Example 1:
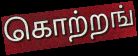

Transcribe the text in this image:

கொற்றங்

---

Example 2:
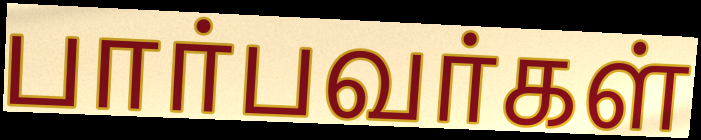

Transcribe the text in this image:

பார்பவர்கள்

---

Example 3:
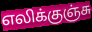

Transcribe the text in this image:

எலிக்குஞ்சு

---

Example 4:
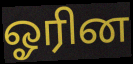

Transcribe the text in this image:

ஓரின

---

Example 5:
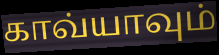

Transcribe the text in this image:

காவ்யாவும்